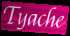
Tyache